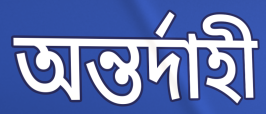
অন্তর্দাহী